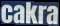
cakra